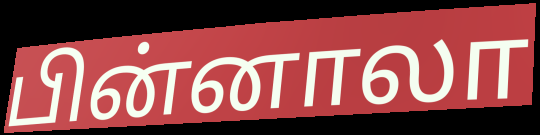
பின்னாலா